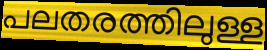
പലതരത്തിലുള്ള